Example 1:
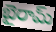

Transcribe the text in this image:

బైరామ్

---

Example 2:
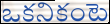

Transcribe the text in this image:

ఒకనికంటె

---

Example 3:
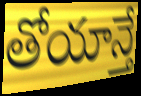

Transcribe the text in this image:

తోయాన్తే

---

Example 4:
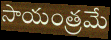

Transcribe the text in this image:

సాయంత్రమే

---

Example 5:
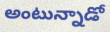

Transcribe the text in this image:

అంటున్నాడో